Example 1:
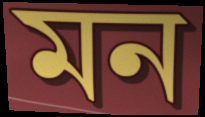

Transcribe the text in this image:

মন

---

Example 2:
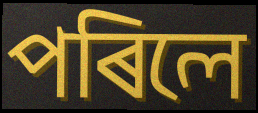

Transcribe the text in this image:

পৰিলে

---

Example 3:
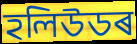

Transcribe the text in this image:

হলিউডৰ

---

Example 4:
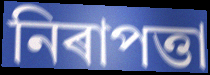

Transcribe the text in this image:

নিৰাপত্তা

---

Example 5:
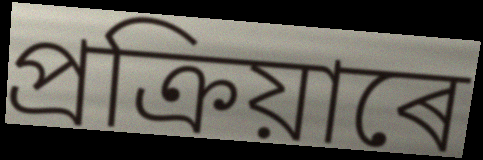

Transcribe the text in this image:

প্ৰক্ৰিয়াৰে